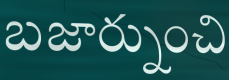
బజార్నుంచి